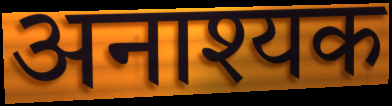
अनाश्यक